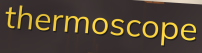
thermoscope